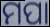
ମପା